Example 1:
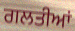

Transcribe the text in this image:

ਗਲਤੀਆਂ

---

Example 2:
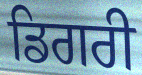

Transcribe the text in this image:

ਡਿਗਰੀ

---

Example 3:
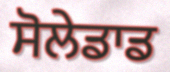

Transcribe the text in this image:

ਸੋਲੇਡਾਡ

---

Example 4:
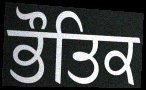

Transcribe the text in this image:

ਭੌਤਿਕ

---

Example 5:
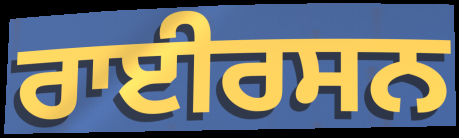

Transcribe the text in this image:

ਰਾਈਰਸਨ